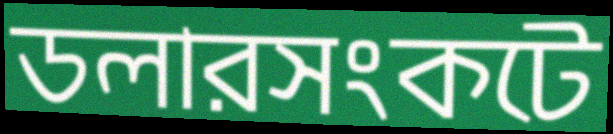
ডলারসংকটে